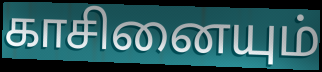
காசினையும்